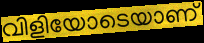
വിളിയോടെയാണ്